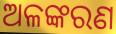
ଅଳଙ୍କରଣ